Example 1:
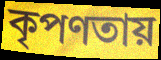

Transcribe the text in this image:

কৃপণতায়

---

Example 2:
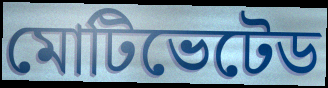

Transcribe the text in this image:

মোটিভেটেড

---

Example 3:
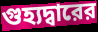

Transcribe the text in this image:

গুহ্যদ্বারের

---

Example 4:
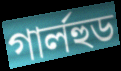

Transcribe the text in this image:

গার্লহুড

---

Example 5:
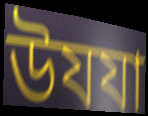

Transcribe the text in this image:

উযযা